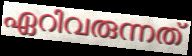
ഏറിവരുന്നത്